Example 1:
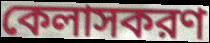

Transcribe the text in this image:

কেলাসকরণ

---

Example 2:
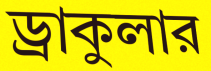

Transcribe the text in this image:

ড্রাকুলার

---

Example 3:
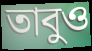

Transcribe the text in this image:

তাবুও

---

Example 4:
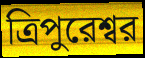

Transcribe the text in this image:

ত্রিপুরেশ্বর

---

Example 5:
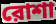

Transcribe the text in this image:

রোশা